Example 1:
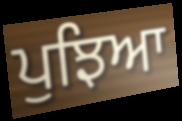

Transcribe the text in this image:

ਪੁਝਿਆ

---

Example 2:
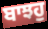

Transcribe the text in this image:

ਬਾਝਹੁ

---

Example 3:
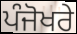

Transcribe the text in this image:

ਪੰਜੋਖਰੇ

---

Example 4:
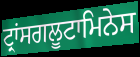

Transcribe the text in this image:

ਟ੍ਰਾਂਸਗਲੂਟਾਮਿਨੇਸ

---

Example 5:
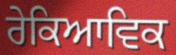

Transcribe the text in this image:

ਰੇਕਿਆਵਿਕ